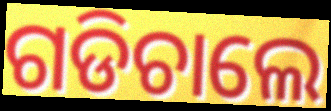
ଗଡିଚାଲେ